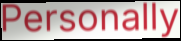
Personally